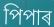
পিপাৰ